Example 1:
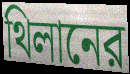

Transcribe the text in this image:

থিলানের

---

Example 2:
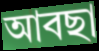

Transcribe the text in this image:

আবছা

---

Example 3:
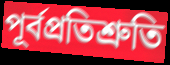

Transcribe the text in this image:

পূর্বপ্রতিশ্রুতি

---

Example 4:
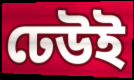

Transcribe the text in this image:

ঢেউই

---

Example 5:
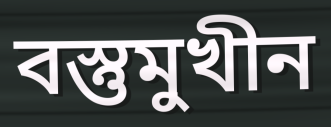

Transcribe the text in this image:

বস্তুমুখীন